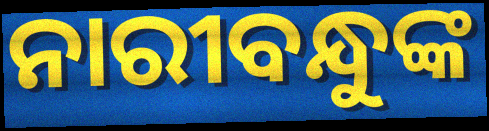
ନାରୀବନ୍ଧୁଙ୍କ